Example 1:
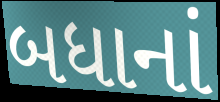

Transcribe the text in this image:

બધાનાં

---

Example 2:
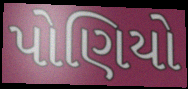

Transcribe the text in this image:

પોણિયો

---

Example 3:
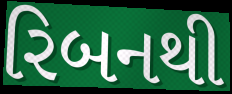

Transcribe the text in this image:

રિબનથી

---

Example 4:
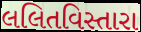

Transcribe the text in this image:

લલિતવિસ્તારા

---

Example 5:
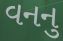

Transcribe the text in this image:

વનનુ